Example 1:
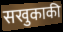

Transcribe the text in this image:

सखुकाकी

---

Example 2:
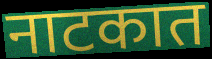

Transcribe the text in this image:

नाटकात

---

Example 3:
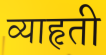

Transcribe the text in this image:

व्याहृती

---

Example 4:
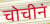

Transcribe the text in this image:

चोचीनं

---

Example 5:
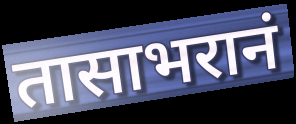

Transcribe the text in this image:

तासाभरानं